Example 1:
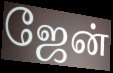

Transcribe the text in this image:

ஜேன்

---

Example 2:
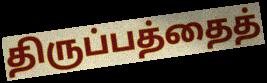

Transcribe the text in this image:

திருப்பத்தைத்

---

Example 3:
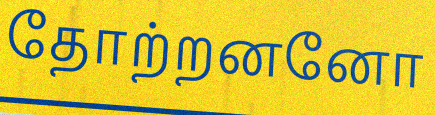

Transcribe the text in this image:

தோற்றனனோ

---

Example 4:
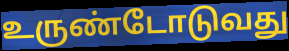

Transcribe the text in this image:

உருண்டோடுவது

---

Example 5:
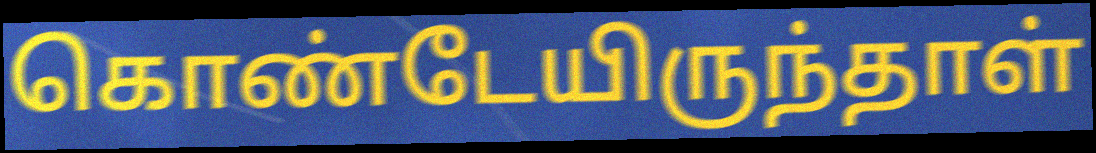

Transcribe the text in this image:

கொண்டேயிருந்தாள்